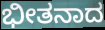
ಭೀತನಾದ